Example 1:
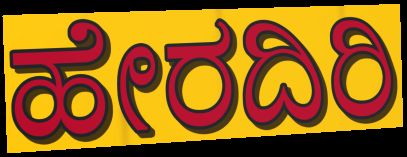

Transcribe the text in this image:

ಹೇರದಿರಿ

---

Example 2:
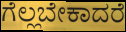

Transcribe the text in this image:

ಗೆಲ್ಲಬೇಕಾದರೆ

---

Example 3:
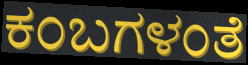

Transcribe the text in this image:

ಕಂಬಗಳಂತೆ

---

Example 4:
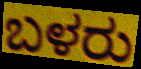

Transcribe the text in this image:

ಬಳರು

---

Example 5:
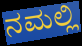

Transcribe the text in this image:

ನಮಲ್ಲಿ